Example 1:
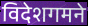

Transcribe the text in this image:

विदेशगमने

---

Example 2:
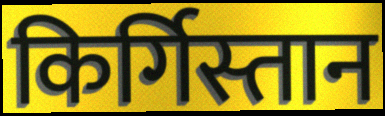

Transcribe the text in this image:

किर्गिस्‍तान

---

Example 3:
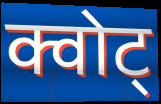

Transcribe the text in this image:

क्वोट्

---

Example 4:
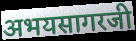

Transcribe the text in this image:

अभयसागरजी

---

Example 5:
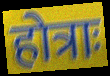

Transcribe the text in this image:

होत्राः